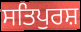
ਸਤਿਪੁਰਸ਼